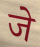
जे